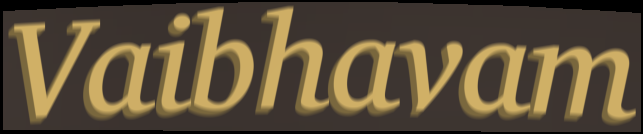
Vaibhavam